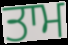
ਤਾਮ